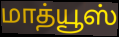
மாத்யூஸ்